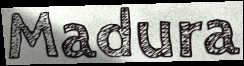
Madura